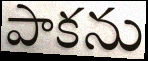
పాకను